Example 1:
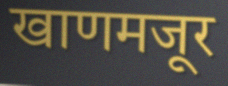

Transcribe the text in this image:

खाणमजूर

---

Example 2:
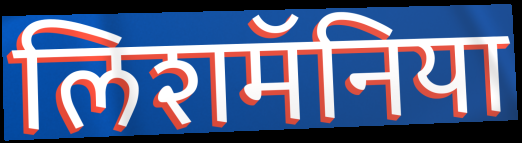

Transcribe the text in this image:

लिशमॅनिया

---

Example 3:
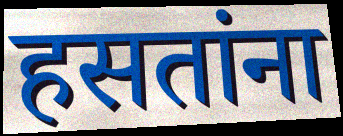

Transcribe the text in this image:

हसतांना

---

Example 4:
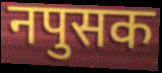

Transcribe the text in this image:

नपुसक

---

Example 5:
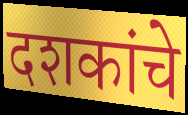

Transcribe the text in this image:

दशकांचे